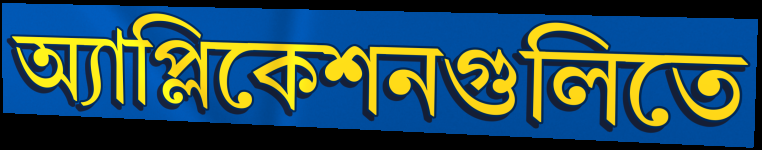
অ্যাপ্লিকেশনগুলিতে